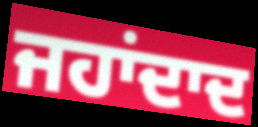
ਜਹਾਂਦਾਦ